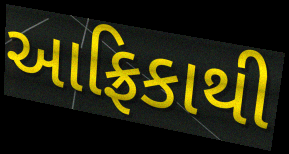
આફ્રિકાથી